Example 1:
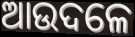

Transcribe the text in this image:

ଆଉଦଳେ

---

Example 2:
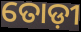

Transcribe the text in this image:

ତୋଡ଼ୀ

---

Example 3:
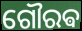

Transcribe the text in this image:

ଗୌରଵ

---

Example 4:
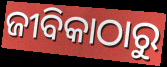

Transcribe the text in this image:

ଜୀବିକାଠାରୁ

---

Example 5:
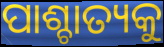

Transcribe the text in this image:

ପାଶ୍ଚାତ୍ୟକୁ